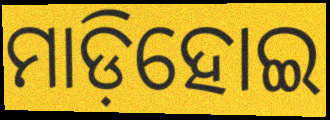
ମାଡ଼ିହୋଇ